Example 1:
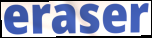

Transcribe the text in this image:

eraser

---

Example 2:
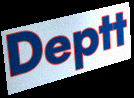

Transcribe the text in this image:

Deptt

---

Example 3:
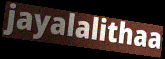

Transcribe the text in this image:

jayalalithaa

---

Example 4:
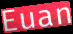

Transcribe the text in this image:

Euan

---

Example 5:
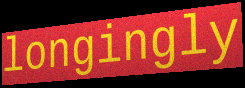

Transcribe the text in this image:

longingly